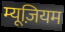
म्यूज़ियम